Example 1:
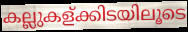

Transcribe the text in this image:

കല്ലുകള്ക്കിടയിലൂടെ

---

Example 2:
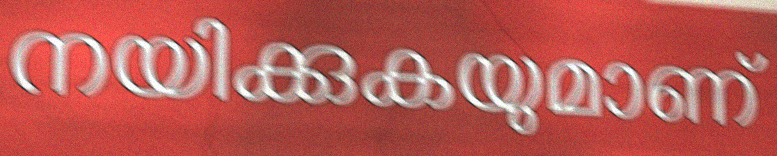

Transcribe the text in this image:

നയിക്കുകയുമാണ്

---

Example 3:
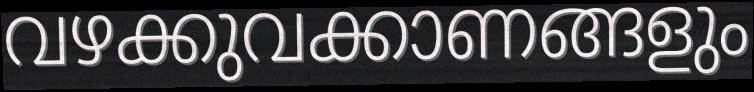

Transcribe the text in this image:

വഴക്കുവക്കാണങ്ങളും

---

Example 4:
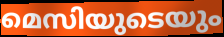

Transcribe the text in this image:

മെസിയുടെയും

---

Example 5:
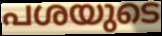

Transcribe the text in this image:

പശയുടെ